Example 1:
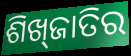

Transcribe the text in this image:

ଶିଖ୍‌ଜାତିର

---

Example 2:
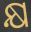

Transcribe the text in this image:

କ୍ଷ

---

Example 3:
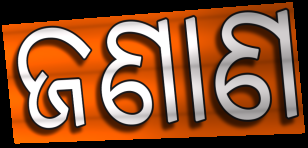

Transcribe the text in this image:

ଜଣାଣ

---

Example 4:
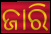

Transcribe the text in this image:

ଜାରି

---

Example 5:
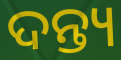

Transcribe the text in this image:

ଦନ୍ତ୍ୟ